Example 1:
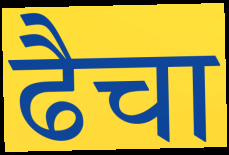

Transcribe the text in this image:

ढैचा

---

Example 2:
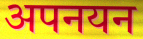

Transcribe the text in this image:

अपनयन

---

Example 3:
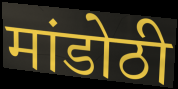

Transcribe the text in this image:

मांडोठी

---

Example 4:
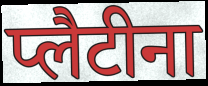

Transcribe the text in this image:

प्लैटीना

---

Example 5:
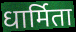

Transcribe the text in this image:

धार्मिता